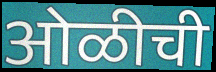
ओळीची